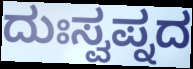
ದುಃಸ್ವಪ್ನದ